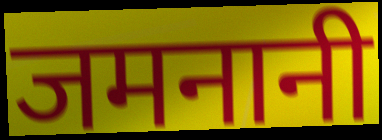
जमनानी